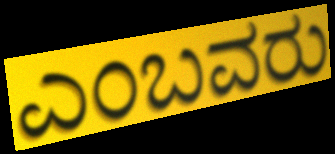
ಎಂಬವರು